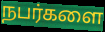
நபர்களை